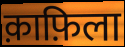
क़ाफ़िला